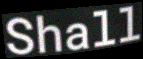
Shall